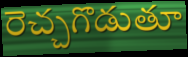
రెచ్చగొడుతూ